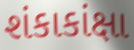
શંકાકાંક્ષા